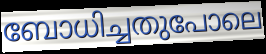
ബോധിച്ചതുപോലെ